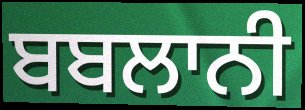
ਬਬਲਾਨੀ